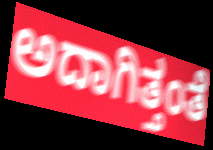
ಅದಾಗಿತ್ತಂತೆ